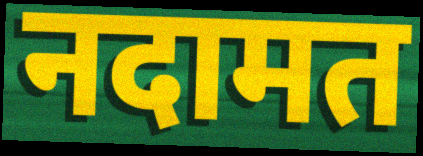
नदामत